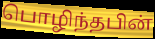
பொழிந்தபின்